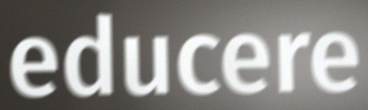
educere